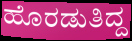
ಹೊರಡುತಿದ್ದ